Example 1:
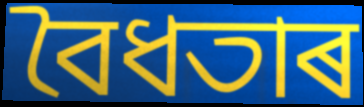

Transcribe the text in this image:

বৈধতাৰ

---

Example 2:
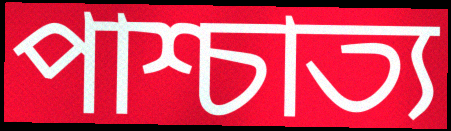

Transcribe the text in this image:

পাশ্চাত্য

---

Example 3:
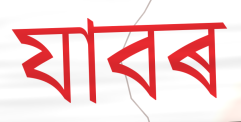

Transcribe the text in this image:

যাবৰ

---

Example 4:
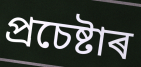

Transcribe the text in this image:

প্ৰচেষ্টাৰ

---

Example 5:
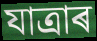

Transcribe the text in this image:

যাত্ৰাৰ